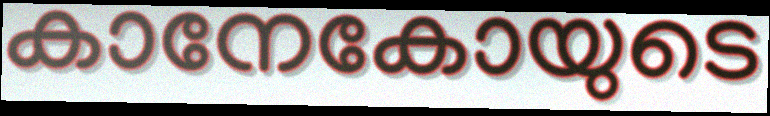
കാനേകോയുടെ